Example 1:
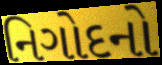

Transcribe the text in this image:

નિગોદનો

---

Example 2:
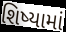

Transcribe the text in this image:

શિષ્યામાં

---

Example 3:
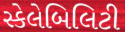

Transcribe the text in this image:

સ્કેલેબિલિટી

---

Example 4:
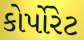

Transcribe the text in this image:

કોર્પોરેટ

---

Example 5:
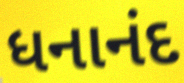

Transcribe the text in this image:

ધનાનંદ